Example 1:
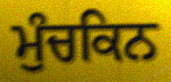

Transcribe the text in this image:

ਮੁੰਚਕਿਨ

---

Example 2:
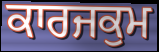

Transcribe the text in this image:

ਕਾਰਜਕੁਮ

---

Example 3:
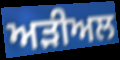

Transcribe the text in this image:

ਅੜੀਅਲ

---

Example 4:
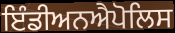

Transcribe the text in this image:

ਇੰਡੀਅਨਐਪੋਲਿਸ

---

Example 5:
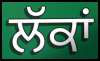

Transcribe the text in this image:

ਲੱਕਾਂ